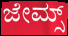
ಜೇಮ್ಸ್